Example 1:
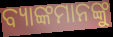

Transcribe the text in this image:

ବ୍ୟାଙ୍କମାନଙ୍କୁ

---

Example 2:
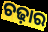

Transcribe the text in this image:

ଚଢ଼ାର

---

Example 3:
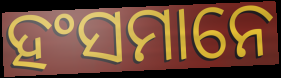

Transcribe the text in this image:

ହଂସମାନେ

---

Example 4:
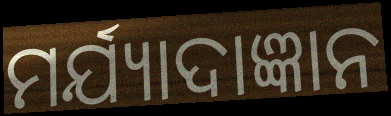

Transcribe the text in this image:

ମର୍ଯ୍ୟାଦାଜ୍ଞାନ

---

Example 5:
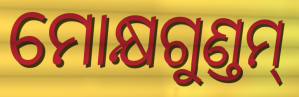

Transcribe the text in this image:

ମୋକ୍ଷଗୁଣ୍ଡମ୍